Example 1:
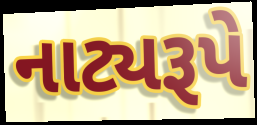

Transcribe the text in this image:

નાટ્યરૂપે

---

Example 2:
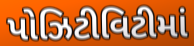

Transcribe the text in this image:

પોઝિટીવિટીમાં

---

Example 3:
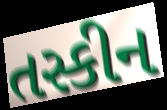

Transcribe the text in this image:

તસ્કીન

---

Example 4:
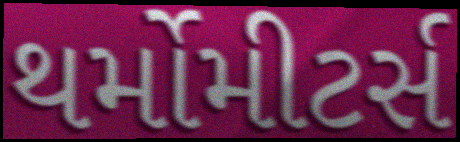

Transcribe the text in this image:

થર્મોમીટર્સ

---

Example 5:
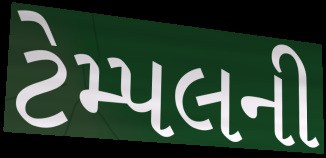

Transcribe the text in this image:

ટેમ્પલની